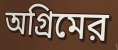
অগ্রিমের